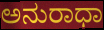
ಅನುರಾಧಾ